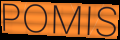
POMIS